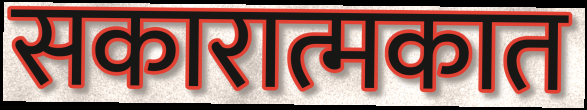
सकारात्मकात